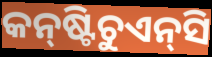
କନ୍‍ଷ୍ଟିଚୁଏନ୍‍ସି